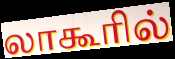
லாகூரில்